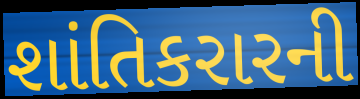
શાંતિકરારની